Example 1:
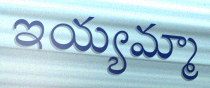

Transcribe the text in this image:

ఇయ్యమ్మా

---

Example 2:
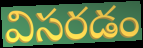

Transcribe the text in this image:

విసరడం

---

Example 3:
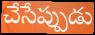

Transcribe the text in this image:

చేసేప్పుడు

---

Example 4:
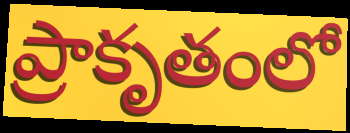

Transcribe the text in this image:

ప్రాకృతంలో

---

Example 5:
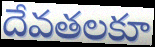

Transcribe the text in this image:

దేవతలకూ